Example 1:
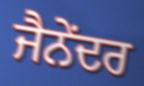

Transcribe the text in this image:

ਜੈਨੇਂਦਰ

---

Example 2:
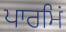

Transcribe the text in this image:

ਪਾਰਮਿਂ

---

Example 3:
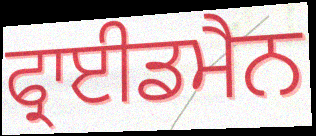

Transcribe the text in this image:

ਫ੍ਰਾਈਡਮੈਨ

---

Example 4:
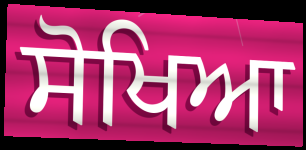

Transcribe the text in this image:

ਸੋਖਿਆ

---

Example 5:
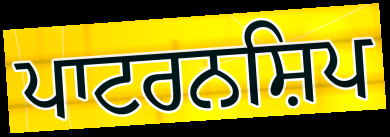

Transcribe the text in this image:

ਪਾਟਰਨਸ਼ਿਪ